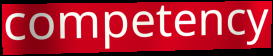
competency